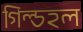
গিল্ডহল